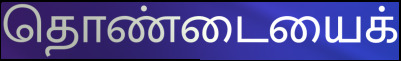
தொண்டையைக்